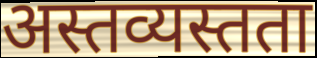
अस्तव्यस्तता